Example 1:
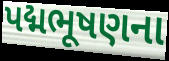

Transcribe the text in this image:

પદ્મભૂષણના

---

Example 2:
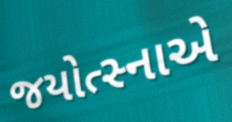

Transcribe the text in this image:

જયોત્સ્નાએ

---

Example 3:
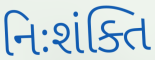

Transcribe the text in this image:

નિઃશંક્તિ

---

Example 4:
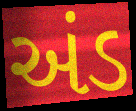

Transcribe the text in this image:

અંડ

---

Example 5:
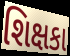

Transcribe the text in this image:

શિક્ષકા